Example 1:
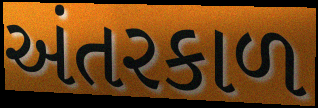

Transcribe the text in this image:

અંતરકાળ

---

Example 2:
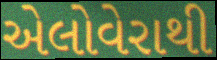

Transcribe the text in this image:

એલોવેરાથી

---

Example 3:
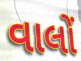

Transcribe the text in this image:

વાલોં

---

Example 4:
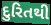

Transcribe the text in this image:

દુરિતથી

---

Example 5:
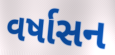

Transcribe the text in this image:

વર્ષાસન